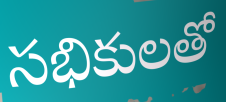
సభికులతో